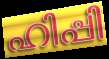
ഹിപ്പി